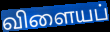
விளையப்